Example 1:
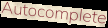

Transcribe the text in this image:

Autocomplete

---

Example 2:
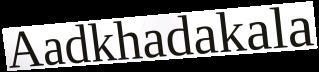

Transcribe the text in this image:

Aadkhadakala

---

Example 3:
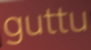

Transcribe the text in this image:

guttu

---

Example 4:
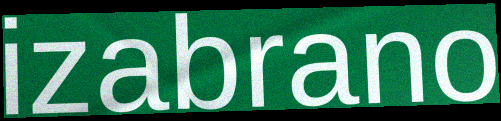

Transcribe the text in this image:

izabrano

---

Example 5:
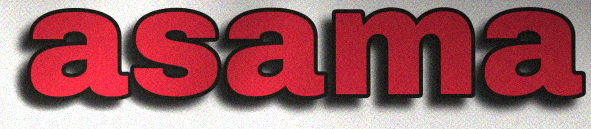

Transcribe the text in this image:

asama